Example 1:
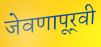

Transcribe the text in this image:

जेवणापूर्वी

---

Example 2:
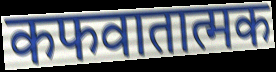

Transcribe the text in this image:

कफवातात्मक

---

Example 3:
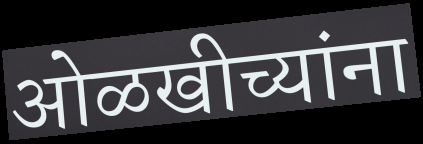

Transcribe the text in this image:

ओळखीच्यांना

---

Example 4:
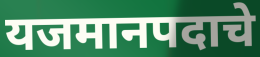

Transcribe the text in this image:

यजमानपदाचे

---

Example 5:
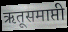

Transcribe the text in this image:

ऋतूसमाप्ती